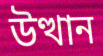
উত্থান